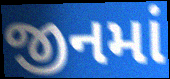
જીનમાં